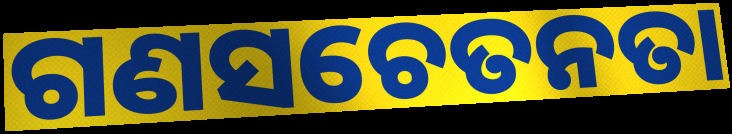
ଗଣସଚେତନତା